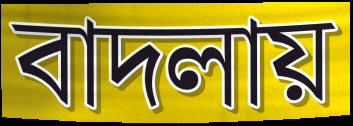
বাদলায়